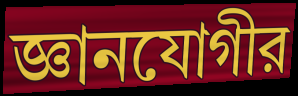
জ্ঞানযোগীর